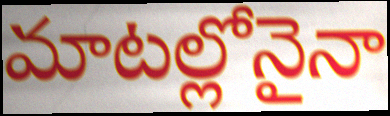
మాటల్లోనైనా